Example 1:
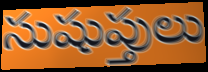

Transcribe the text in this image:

సుషుప్తులు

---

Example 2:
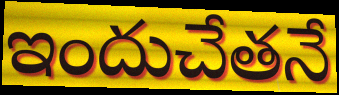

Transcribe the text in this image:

ఇందుచేతనే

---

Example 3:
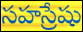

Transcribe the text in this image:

సహస్రేషు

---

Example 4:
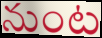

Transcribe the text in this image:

నుంట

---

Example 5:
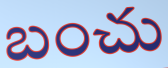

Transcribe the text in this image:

బంచు